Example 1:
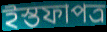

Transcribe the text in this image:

ইস্তফাপত্র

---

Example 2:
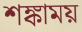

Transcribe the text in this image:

শঙ্কাময়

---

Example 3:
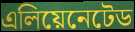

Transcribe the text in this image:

এলিয়েনেটেড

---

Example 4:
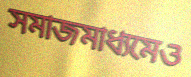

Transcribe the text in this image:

সমাজমাধ্যমেও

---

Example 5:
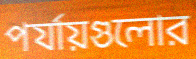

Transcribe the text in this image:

পর্যায়গুলোর